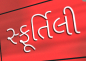
સ્ફૂર્તિલી